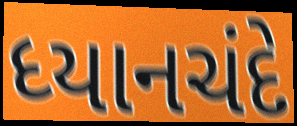
ધ્યાનચંદે